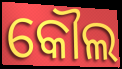
କୌଲ